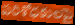
పరిశోధకులపై